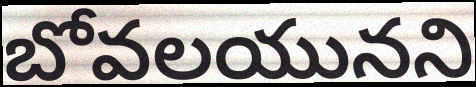
బోవలయునని